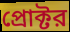
প্রোক্টর